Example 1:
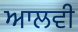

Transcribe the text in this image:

ਆਲਵੀ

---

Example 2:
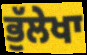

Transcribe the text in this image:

ਭੁੱਲੇਖਾ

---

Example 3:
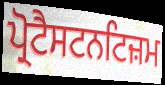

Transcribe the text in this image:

ਪ੍ਰੋਟੈਸਟਨਟਿਜ਼ਮ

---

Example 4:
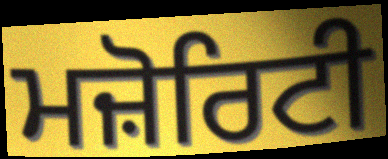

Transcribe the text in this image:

ਮਜ਼ੋਰਿਟੀ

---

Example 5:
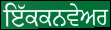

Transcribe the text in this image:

ਇੱਕਕਨਵੇਅਰ